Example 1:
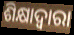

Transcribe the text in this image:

ଶିକ୍ଷାଦ୍ୱାରା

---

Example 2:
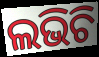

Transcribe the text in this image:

ଲଭିଚି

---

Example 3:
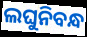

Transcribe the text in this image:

ଲଘୁନିବନ୍ଧ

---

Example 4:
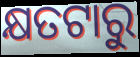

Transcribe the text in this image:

କ୍ଷତଟାରୁ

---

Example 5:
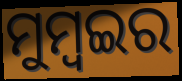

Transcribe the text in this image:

ମୁମ୍ବଇର